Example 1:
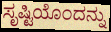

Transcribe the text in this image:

ಸೃಷ್ಟಿಯೊಂದನ್ನು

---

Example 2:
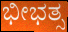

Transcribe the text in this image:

ಭೀಭತ್ಸ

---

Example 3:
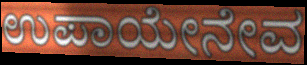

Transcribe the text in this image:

ಉಪಾಯೇನೇವ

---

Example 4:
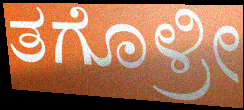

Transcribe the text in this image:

ತಗೊಳ್ರೀ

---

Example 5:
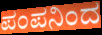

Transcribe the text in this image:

ಪಂಪನಿಂದ